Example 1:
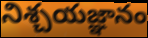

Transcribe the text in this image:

నిశ్చయజ్ఞానం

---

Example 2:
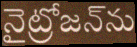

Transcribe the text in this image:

నైట్రోజన్‌ను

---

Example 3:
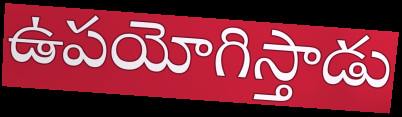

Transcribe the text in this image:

ఉపయోగిస్తాడు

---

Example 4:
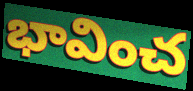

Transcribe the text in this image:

భావించ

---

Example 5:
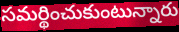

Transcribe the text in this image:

సమర్థించుకుంటున్నారు